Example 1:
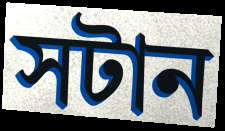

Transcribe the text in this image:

সটান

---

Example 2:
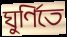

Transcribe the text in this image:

ঘুর্ণিতে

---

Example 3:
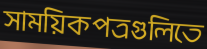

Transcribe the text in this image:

সাময়িকপত্রগুলিতে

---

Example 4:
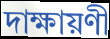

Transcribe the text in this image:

দাক্ষায়ণী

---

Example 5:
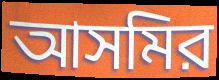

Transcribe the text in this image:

আসমির